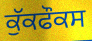
ਕੁੱਕਫੌਕਸ